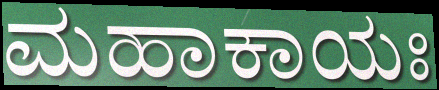
ಮಹಾಕಾಯಃ